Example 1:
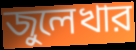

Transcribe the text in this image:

জুলেখার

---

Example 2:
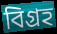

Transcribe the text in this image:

বিগ্রহ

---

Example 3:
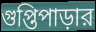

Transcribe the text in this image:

গুপ্তিপাড়ার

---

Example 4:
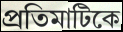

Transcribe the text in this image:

প্রতিমাটিকে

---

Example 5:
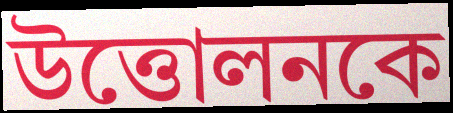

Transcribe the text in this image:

উত্তোলনকে